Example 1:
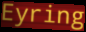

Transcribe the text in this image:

Eyring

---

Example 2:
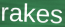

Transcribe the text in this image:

rakes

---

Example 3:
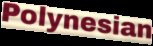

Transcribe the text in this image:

Polynesian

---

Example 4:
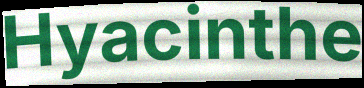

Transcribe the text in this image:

Hyacinthe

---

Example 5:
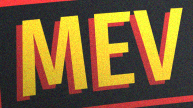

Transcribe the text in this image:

MEV